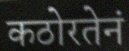
कठोरतेनं